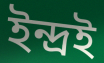
ইন্দ্ৰই